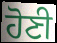
ਹੋਣੀ